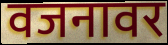
वजनावर